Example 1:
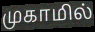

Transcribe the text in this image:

முகாமில்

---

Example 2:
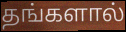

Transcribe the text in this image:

தங்களால்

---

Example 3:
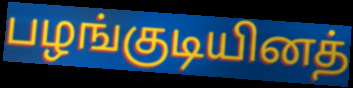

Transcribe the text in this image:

பழங்குடியினத்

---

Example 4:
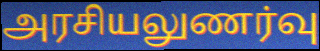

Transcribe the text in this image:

அரசியலுணர்வு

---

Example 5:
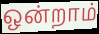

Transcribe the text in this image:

ஒன்றாம்